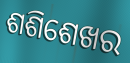
ଶଶିଶେଖର